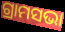
ଗ୍ରାମସଭା